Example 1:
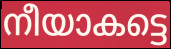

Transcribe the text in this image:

നീയാകട്ടെ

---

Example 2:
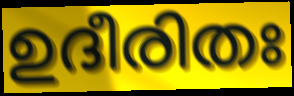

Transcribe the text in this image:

ഉദീരിതഃ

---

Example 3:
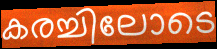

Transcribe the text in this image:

കരച്ചിലോടെ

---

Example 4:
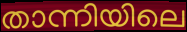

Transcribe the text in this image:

താന്നിയിലെ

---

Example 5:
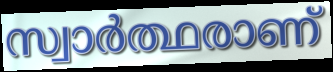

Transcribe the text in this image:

സ്വാർത്ഥരാണ്